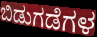
ಬಿಡುಗಡೆಗಳ